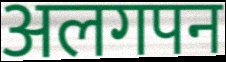
अलगपन